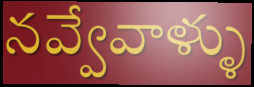
నవ్వేవాళ్ళు